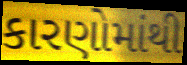
કારણોમાંથી